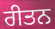
ਰੀਤਨ